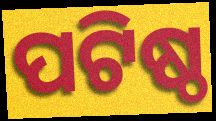
ପଟିଷ୍ଠ